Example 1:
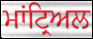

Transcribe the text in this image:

ਮਾਂਟ੍ਰਿਅਲ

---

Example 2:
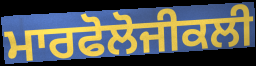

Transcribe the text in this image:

ਮਾਰਫੋਲੋਜੀਕਲੀ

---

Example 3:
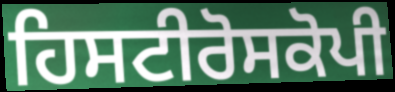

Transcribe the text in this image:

ਹਿਸਟੀਰੋਸਕੋਪੀ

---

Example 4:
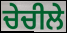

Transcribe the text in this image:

ਚੇਚੀਲੇ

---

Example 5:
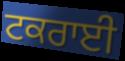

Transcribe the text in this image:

ਟਕਰਾਈ